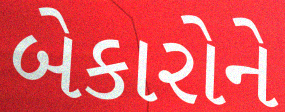
બેકારોને